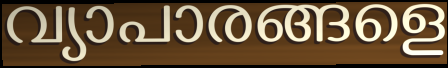
വ്യാപാരങ്ങളെ